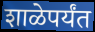
शाळेपर्यंत